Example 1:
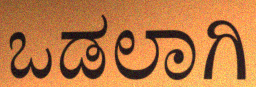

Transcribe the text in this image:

ಒಡಲಾಗಿ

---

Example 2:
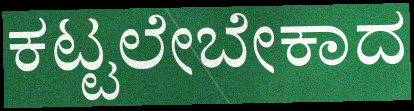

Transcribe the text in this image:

ಕಟ್ಟಲೇಬೇಕಾದ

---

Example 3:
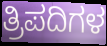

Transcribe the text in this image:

ತ್ರಿಪದಿಗಳ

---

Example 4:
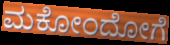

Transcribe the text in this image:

ಮಕೋಂದೋಗೆ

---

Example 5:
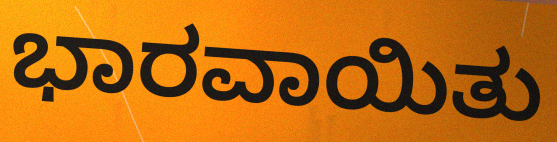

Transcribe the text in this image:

ಭಾರವಾಯಿತು